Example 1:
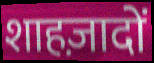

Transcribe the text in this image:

शाहज़ादों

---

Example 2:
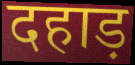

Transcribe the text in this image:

दहाड़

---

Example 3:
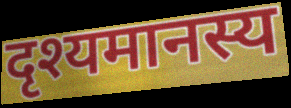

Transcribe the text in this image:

दृश्यमानस्य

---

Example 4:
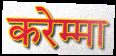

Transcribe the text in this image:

करेम्मा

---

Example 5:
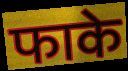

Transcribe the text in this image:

फाके